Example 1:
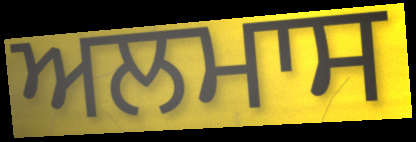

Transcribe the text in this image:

ਅਲਮਾਸ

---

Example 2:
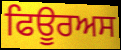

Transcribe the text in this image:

ਫਿਊਰਅਸ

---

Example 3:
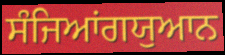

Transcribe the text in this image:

ਸੰਜਿਆਂਗਯੁਆਨ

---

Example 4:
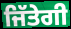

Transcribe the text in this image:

ਜਿੱਤੇਗੀ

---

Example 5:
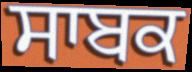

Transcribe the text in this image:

ਸਾਬਕ